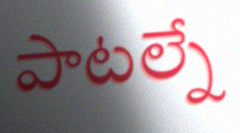
పాటల్నే